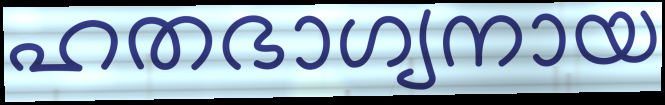
ഹതഭാഗ്യനായ